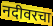
नदीवरचा